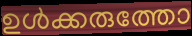
ഉൾക്കരുത്തോ